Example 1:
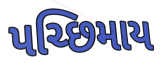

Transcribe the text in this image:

પચ્છિમાય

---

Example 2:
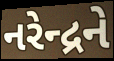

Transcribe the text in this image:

નરેન્દ્રને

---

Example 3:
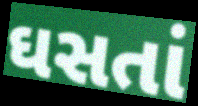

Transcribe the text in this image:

ઘસતાં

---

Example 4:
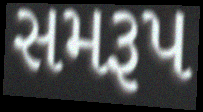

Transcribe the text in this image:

સમરૂપ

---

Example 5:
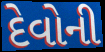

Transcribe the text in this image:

દેવોની